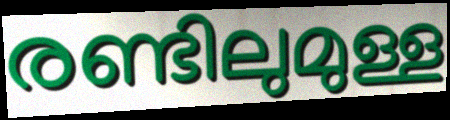
രണ്ടിലുമുള്ള